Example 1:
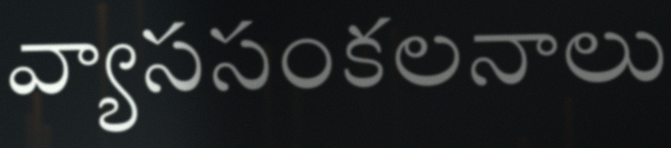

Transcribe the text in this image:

వ్యాససంకలనాలు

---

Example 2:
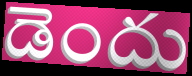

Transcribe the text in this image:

డెందు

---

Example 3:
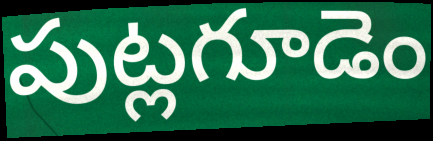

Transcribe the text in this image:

పుట్లగూడెం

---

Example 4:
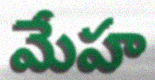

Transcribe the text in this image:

మేహ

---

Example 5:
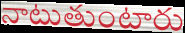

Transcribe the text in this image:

నాటుతుంటారు